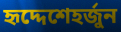
হৃদ্দেশেহর্জুন